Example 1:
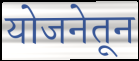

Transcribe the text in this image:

योजनेतून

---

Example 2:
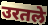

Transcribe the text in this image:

उरतले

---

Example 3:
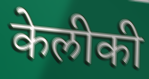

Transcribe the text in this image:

केलीकी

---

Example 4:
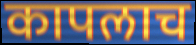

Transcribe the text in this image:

कापलाच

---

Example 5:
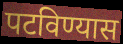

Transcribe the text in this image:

पटविण्यास